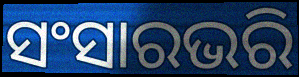
ସଂସାରଭରି